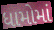
ધામોમાં